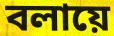
বলায়ে